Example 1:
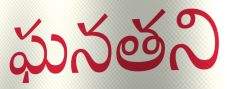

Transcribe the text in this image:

ఘనతని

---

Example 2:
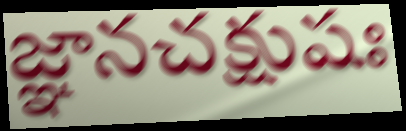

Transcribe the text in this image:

జ్ఞానచక్షుషః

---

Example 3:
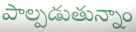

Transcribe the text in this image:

పాల్పడుతున్నాం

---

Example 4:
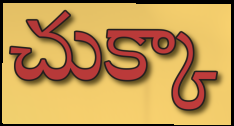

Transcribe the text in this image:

చుక్కా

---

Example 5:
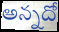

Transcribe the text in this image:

అన్నదో